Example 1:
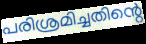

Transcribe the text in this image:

പരിശ്രമിച്ചതിന്റെ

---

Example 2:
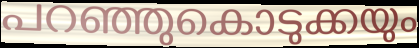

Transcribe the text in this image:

പറഞ്ഞുകൊടുക്കയും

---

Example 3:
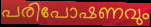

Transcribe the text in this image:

പരിപോഷണവും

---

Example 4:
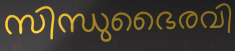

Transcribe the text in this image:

സിന്ധുഭൈരവി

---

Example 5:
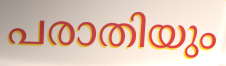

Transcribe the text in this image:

പരാതിയും